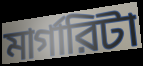
মার্গারিটা